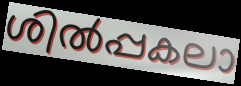
ശിൽപ്പകലാ